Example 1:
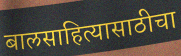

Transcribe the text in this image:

बालसाहित्यासाठीचा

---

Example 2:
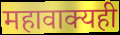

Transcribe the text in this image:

महावाक्यही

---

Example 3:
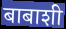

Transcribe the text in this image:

बाबाशी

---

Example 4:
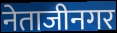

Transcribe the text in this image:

नेताजीनगर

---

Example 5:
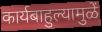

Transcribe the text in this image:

कार्यबाहुल्यामुळें